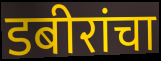
डबीरांचा